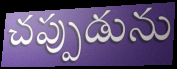
చప్పుడును